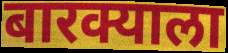
बारक्याला